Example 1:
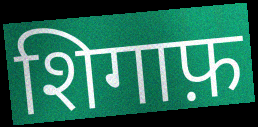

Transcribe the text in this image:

शिगाफ़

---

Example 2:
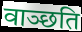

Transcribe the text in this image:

वाञ्छति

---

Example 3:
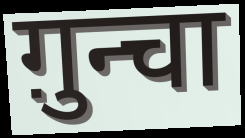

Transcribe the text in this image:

ग़ुन्चा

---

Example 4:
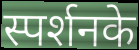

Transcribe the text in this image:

स्पर्शनके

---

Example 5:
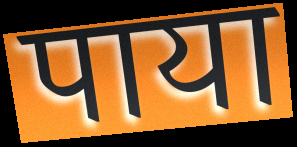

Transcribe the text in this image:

पाया